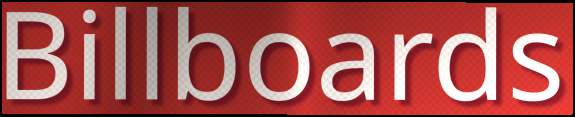
Billboards